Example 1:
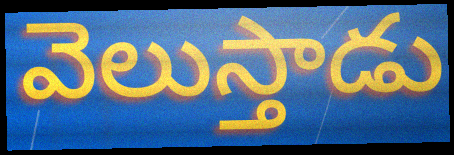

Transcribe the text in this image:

వెలుస్తాడు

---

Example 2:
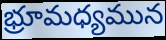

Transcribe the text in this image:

భ్రూమధ్యమున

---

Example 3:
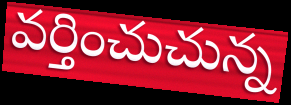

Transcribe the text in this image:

వర్తించుచున్న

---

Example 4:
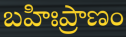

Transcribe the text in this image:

బహిఃప్రాణం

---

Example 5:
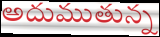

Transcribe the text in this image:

అదుముతున్న